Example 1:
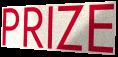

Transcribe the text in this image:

PRIZE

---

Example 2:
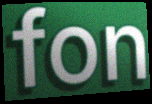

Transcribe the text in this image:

fon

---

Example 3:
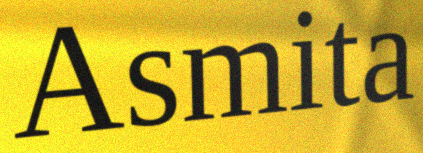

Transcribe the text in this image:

Asmita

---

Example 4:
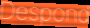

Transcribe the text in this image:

Despond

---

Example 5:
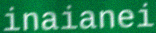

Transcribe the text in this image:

inaianei